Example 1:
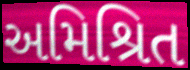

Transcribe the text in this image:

અમિશ્રિત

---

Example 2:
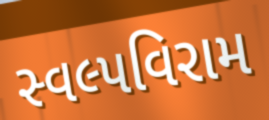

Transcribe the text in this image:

સ્વલ્પવિરામ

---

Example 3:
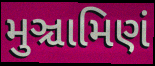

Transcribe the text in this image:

મુઞ્ચામિણં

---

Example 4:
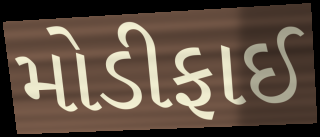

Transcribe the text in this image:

મોડીફાઈ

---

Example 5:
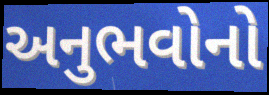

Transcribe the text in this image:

અનુભવોનો